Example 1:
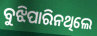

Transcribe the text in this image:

ବୁଝିପାରିନଥିଲେ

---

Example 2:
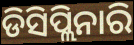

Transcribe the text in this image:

ଡିସିପ୍ଲିନାରି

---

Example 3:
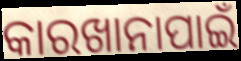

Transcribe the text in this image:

କାରଖାନାପାଇଁ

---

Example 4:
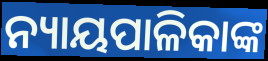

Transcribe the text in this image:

ନ୍ୟାୟପାଳିକାଙ୍କ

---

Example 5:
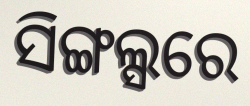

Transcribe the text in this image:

ସିଙ୍ଗଲ୍ସରେ